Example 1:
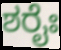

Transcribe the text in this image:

ಶರೈಃ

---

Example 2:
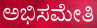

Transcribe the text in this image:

ಅಭಿಸಮೇತಿ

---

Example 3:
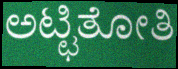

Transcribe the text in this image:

ಅಟ್ಟಿತೋತಿ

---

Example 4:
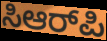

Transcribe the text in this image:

ಸಿಆರ್‌ಪಿ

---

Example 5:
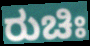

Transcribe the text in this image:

ರುಚಿಃ